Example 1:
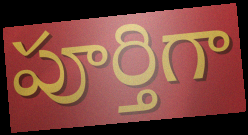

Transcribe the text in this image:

పూర్తిగా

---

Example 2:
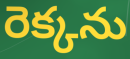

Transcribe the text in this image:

రెక్కను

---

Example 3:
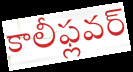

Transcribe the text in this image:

కాలీఫ్లవర్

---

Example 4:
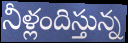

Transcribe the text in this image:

నీళ్లందిస్తున్న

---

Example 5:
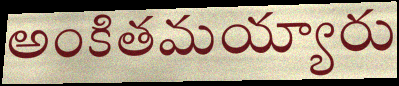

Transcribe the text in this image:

అంకితమయ్యారు